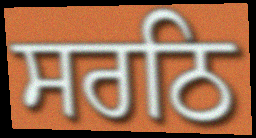
ਸਰਠਿ